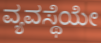
ವ್ಯವಸ್ಥೆಯೇ